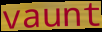
vaunt